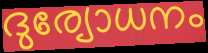
ദുര്യോധനം